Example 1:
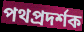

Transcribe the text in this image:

পথপ্রদর্শক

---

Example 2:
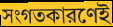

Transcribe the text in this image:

সংগতকারণেই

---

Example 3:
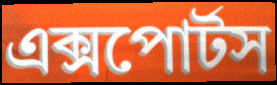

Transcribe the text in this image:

এক্সপোর্টস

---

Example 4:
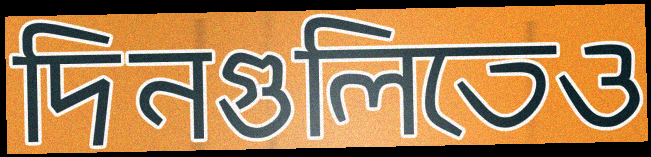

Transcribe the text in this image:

দিনগুলিতেও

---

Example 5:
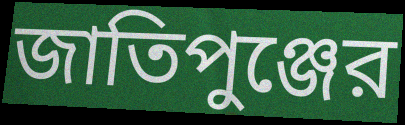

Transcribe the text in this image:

জাতিপুঞ্জের